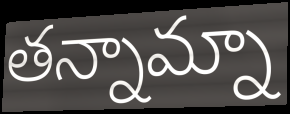
తన్నామ్నా